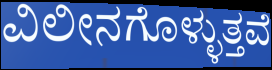
ವಿಲೀನಗೊಳ್ಳುತ್ತವೆ